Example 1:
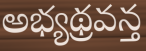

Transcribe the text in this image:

అభ్యథ్రవన్త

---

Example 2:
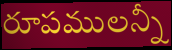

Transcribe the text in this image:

రూపములన్నీ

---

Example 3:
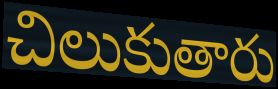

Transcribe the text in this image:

చిలుకుతారు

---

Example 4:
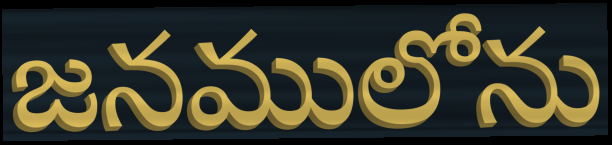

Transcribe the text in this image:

జనములోను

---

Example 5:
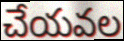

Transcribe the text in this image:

చేయవల